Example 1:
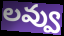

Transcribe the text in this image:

లవ్వు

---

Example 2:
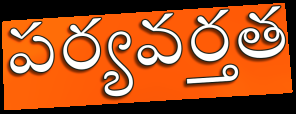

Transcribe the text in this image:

పర్యవర్తత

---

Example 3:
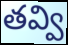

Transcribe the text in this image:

తవ్వి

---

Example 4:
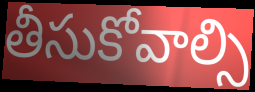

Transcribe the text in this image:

తీసుకోవాల్సి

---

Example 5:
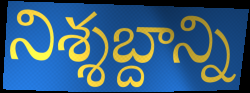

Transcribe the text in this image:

నిశ్శబ్దాన్ని